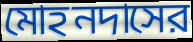
মোহনদাসের